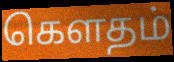
கௌதம்